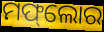
ମଫ୍‌ଲୋର